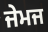
ਜੇਮਜ